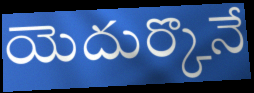
యెదుర్కొనే